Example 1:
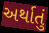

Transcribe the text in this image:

અર્થાતું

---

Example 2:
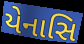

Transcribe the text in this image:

યેનાસિ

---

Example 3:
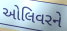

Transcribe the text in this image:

ઓલિવરને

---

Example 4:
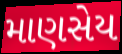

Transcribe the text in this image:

માણસેય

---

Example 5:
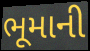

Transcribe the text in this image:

ભૂમાની